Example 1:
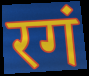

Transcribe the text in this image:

रगं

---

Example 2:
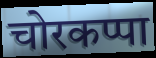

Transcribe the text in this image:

चोरकप्पा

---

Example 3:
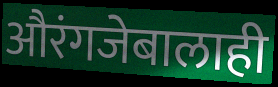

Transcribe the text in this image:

औरंगजेबालाही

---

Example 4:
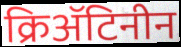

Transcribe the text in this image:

क्रिॲटिनीन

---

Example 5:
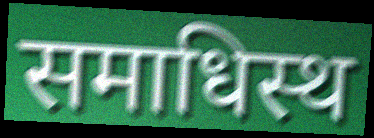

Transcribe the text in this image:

समाधिस्थ